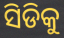
ସିଡିକୁ